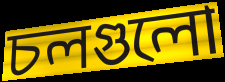
চলগুলো